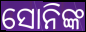
ସୋନିଙ୍କ